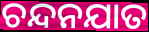
ଚନ୍ଦନଯାତ